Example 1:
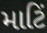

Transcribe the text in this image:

માટિં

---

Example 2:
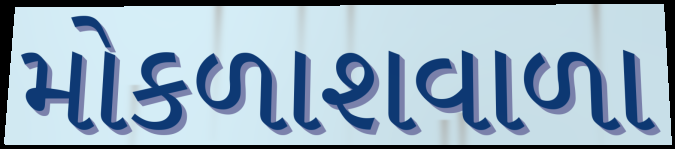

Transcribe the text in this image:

મોકળાશવાળા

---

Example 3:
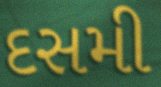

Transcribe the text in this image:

દસમી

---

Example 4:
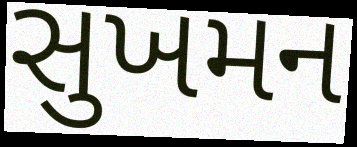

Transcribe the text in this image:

સુખમન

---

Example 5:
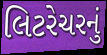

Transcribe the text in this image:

લિટરેચરનું